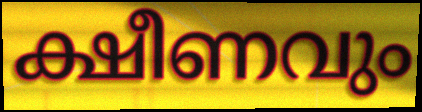
ക്ഷീണവും